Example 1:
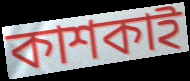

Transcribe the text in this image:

কাশকাই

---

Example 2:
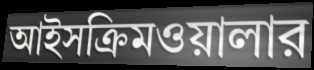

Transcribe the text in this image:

আইসক্রিমওয়ালার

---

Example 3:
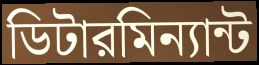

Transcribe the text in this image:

ডিটারমিন্যান্ট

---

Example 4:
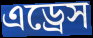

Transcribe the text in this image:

এড্রেস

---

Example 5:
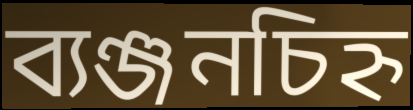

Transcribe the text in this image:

ব্যঞ্জনচিহ্ন